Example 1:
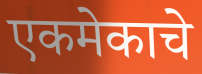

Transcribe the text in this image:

एकमेकाचे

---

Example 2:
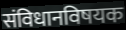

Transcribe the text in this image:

संविधानविषयक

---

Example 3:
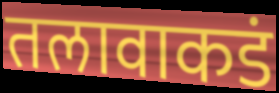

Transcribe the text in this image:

तलावाकडं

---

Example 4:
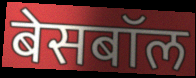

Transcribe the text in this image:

बेसबॉल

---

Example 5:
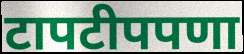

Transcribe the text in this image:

टापटीपपणा